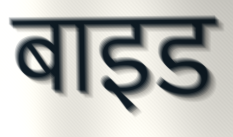
बाइड